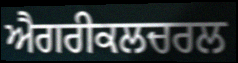
ਐਗਰੀਕਲਚਰਲ